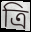
ত্ৰি